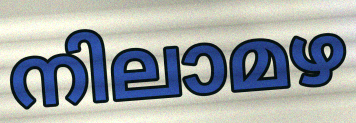
നിലാമഴ